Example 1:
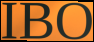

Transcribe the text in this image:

IBO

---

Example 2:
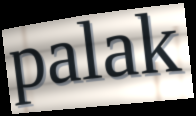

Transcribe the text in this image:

palak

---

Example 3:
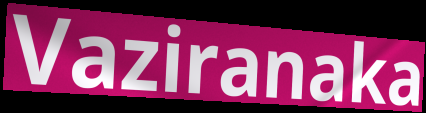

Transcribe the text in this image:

Vaziranaka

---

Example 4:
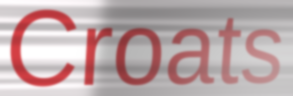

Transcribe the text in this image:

Croats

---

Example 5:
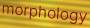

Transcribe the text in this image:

morphology